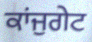
ਕਾਂਜੁਗੇਟ